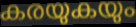
കരയുകയും